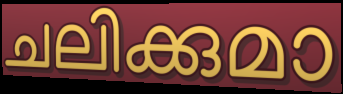
ചലിക്കുമാ